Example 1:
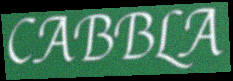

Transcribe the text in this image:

CABBLA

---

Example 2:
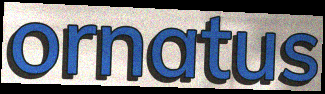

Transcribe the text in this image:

ornatus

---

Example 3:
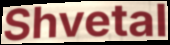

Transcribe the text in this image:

Shvetal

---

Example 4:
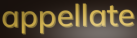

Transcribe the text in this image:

appellate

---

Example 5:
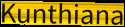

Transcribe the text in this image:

Kunthiana